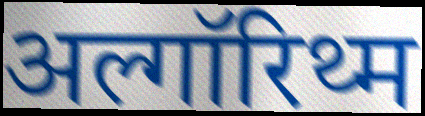
अल्गॉरिथ्म